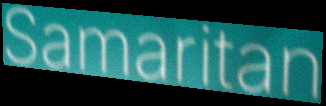
Samaritan